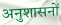
अनुशासनों